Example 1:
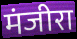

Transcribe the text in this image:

मंजीरा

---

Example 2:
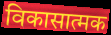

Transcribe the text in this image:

विकासात्मक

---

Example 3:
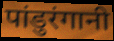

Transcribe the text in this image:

पांडुरंगानी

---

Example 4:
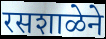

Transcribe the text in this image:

रसशाळेने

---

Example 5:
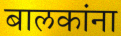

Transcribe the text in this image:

बालकांना